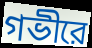
গভীরে